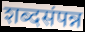
शब्दसंपन्न